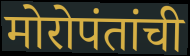
मोरोपंतांची